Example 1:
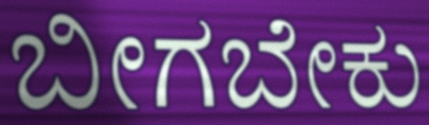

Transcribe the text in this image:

ಬೀಗಬೇಕು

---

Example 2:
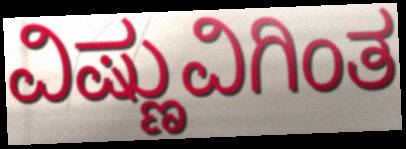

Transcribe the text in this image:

ವಿಷ್ಣುವಿಗಿಂತ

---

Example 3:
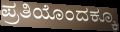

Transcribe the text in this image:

ಪ್ರತಿಯೊಂದಕ್ಕೂ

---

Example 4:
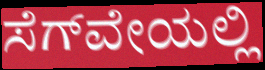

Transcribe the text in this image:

ಸೆಗ್‌ವೇಯಲ್ಲಿ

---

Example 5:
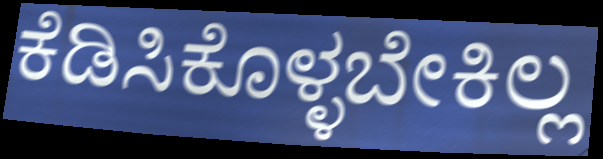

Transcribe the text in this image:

ಕೆಡಿಸಿಕೊಳ್ಳಬೇಕಿಲ್ಲ